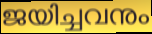
ജയിച്ചവനും